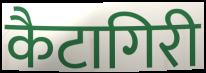
कैटागिरी